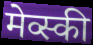
मेव्स्की